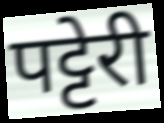
पट्टेरी